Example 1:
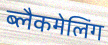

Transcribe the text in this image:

ब्लैकमेलिंग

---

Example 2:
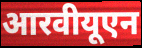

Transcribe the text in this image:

आरवीयूएन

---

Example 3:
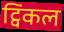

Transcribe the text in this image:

ट्विंकल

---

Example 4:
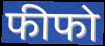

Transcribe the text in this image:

फीफो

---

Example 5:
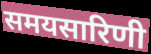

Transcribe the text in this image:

समयसारिणी